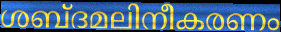
ശബ്ദമലിനീകരണം